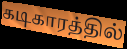
கடிகாரத்தில்